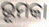
ଭୂମକା